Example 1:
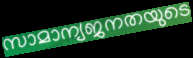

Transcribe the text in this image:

സാമാന്യജനതയുടെ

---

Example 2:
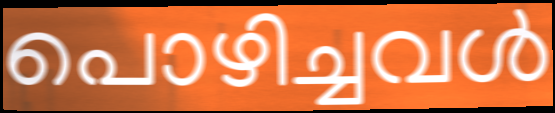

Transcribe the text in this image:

പൊഴിച്ചവൾ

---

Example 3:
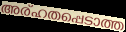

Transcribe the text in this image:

അര്ഹതപ്പെടാത്ത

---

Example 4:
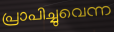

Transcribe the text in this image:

പ്രാപിച്ചുവെന്ന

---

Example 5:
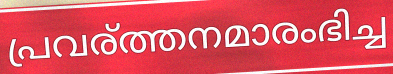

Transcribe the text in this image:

പ്രവര്ത്തനമാരംഭിച്ച